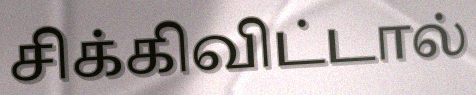
சிக்கிவிட்டால்